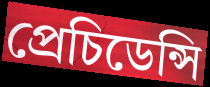
প্ৰেচিডেন্সি